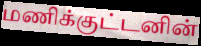
மணிக்குட்டனின்